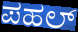
ಪಹಲ್